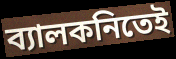
ব্যালকনিতেই